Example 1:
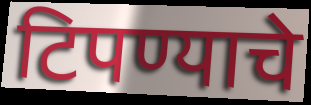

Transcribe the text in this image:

टिपण्याचे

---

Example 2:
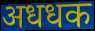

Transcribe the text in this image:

अधधक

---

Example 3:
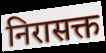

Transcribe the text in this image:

निरासक्त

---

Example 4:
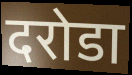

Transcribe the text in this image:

दरोडा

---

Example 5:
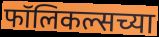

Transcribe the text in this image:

फॉलिकल्सच्या